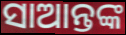
ସାଆନ୍ତଙ୍କ